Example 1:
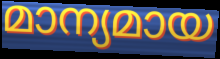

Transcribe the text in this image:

മാന്യമായ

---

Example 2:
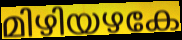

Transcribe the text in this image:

മിഴിയഴകേ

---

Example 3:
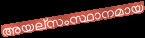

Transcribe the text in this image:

അയല്സംസ്ഥാനമായ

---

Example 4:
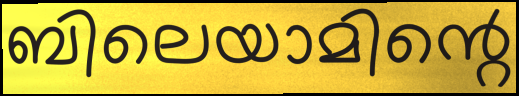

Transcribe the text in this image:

ബിലെയാമിന്റെ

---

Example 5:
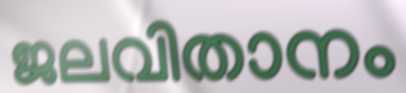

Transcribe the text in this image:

ജലവിതാനം